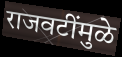
राजवटींमुळे